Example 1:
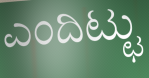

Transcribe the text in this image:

ಎಂದಿಟ್ಟು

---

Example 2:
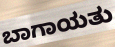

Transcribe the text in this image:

ಬಾಗಾಯತು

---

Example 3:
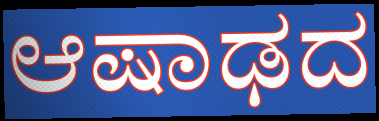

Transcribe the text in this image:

ಆಷಾಢದ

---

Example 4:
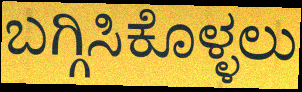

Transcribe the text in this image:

ಬಗ್ಗಿಸಿಕೊಳ್ಳಲು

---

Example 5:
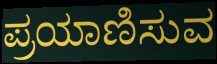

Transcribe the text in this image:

ಪ್ರಯಾಣಿಸುವ